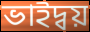
ভাইদ্বয়